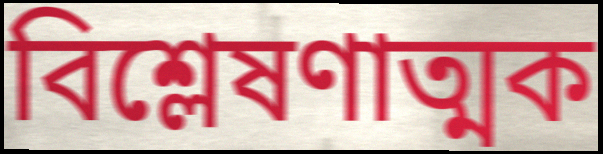
বিশ্লেষণাত্মক